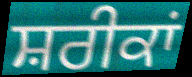
ਸ਼ਰੀਕਾਂ